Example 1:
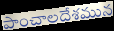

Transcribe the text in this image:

పాంచాలదేశమున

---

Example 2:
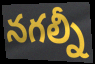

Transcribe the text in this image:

నగల్నీ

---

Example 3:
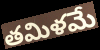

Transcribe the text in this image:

తమిళమే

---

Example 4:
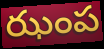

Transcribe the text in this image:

ఝంప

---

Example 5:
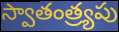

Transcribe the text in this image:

స్వాతంత్ర్యపు